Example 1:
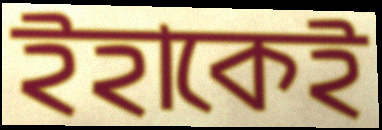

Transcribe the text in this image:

ইহাকেই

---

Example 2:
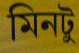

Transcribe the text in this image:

মিনটু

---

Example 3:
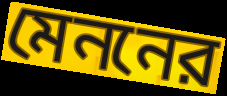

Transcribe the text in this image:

মেননের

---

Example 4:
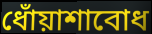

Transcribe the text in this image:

ধোঁয়াশাবোধ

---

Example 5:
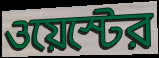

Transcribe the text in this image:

ওয়েস্টের